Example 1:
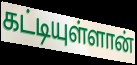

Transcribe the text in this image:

கட்டியுள்ளான்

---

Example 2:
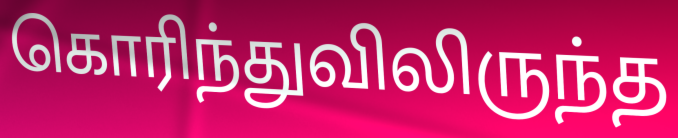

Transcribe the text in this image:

கொரிந்துவிலிருந்த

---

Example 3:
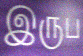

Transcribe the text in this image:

இருப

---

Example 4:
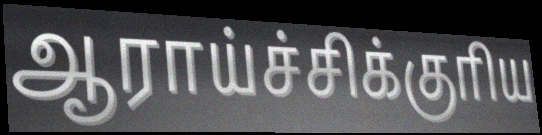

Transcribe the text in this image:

ஆராய்ச்சிக்குரிய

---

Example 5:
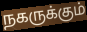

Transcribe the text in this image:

நகருக்கும்